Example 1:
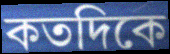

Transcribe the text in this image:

কতদিকে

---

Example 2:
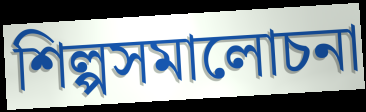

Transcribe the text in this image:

শিল্পসমালোচনা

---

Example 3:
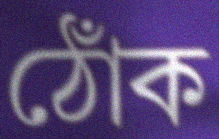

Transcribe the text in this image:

ঠোঁক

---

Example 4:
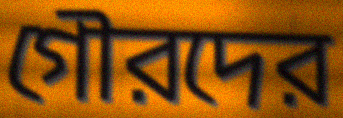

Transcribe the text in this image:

গৌরদের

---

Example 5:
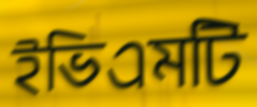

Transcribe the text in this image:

ইভিএমটি